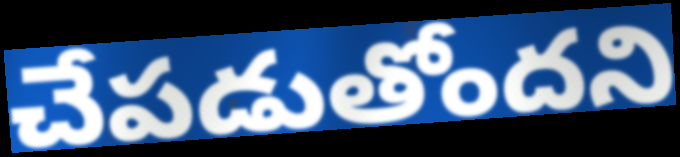
చేపడుతోందని